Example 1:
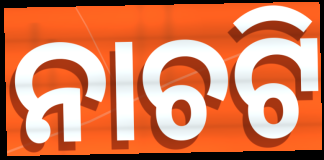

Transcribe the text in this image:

ନାଚଟି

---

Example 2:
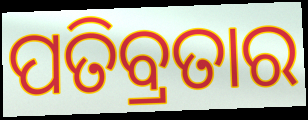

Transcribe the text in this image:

ପତିବ୍ରତାର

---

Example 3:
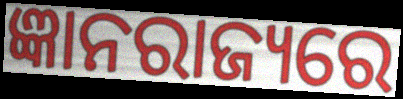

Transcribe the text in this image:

ଜ୍ଞାନରାଜ୍ୟରେ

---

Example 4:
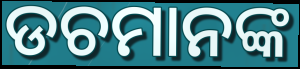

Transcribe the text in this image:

ଡଚମାନଙ୍କ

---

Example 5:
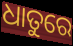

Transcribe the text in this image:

ଧାତୁରେ